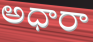
అధారా